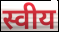
स्वीय